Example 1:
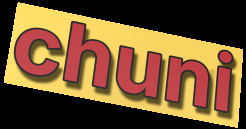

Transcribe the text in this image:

chuni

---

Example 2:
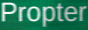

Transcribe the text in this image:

Propter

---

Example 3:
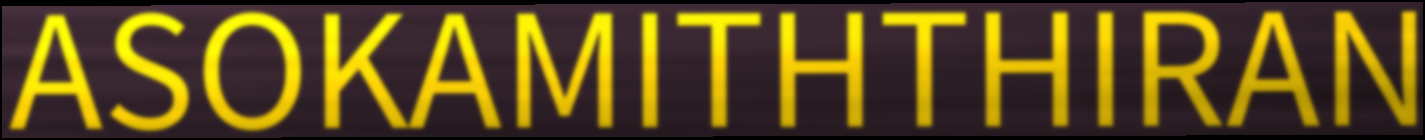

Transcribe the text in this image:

ASOKAMITHTHIRAN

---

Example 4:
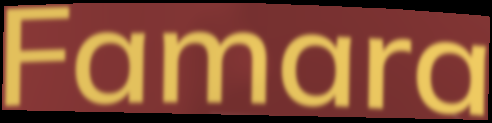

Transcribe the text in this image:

Famara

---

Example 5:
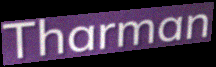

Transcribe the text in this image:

Tharman